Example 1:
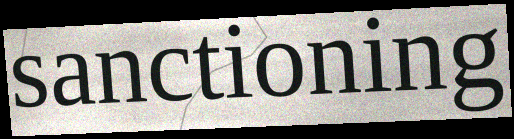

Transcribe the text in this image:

sanctioning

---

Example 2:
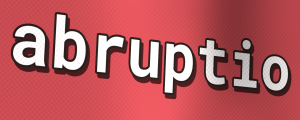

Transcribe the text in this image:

abruptio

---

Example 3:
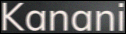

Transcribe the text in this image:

Kanani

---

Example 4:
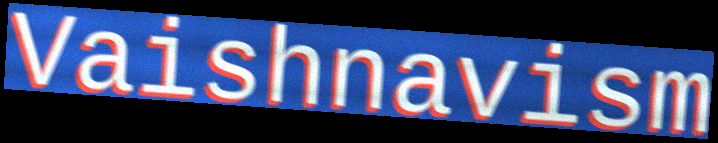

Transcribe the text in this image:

Vaishnavism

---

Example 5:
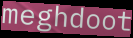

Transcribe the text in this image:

meghdoot